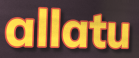
allatu